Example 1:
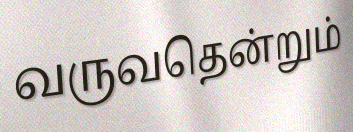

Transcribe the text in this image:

வருவதென்றும்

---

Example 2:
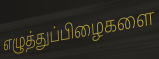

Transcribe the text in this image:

எழுத்துப்பிழைகளை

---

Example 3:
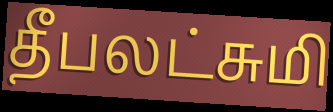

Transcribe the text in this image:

தீபலட்சுமி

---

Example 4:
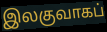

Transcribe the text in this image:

இலகுவாகப்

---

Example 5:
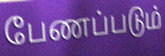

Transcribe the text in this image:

பேணப்படும்